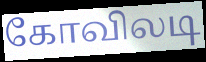
கோவிலடி